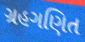
ગ્રહગણિત